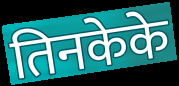
तिनकेके